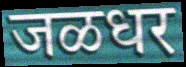
जळधर